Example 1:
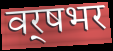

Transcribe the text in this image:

वर्षभर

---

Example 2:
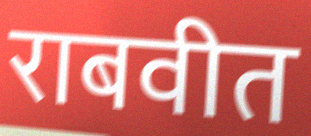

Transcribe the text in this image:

राबवीत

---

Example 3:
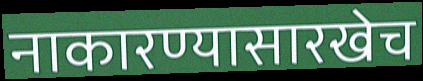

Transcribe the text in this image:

नाकारण्यासारखेच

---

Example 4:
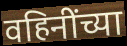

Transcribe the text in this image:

वहिनींच्या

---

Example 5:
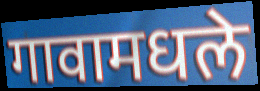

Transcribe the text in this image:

गावामधले